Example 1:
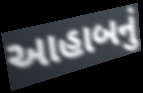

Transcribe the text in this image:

આહાબનું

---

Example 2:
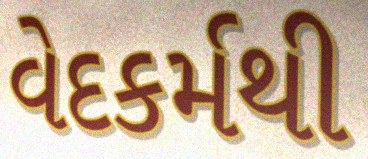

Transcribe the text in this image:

વેદકર્મથી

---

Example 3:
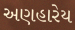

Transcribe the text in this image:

અણહારેય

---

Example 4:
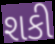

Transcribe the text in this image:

શકી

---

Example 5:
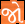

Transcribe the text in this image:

જો